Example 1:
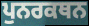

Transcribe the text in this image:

ਪੁਨਰਕਥਨ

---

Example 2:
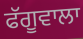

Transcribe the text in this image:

ਫੱਗੂਵਾਲਾ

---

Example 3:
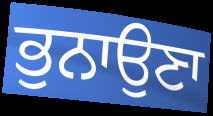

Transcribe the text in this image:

ਭੁਨਾਉਣਾ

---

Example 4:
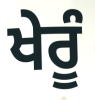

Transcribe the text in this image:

ਖੇਰੂੰ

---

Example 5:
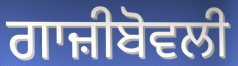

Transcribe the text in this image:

ਗਾਜ਼ੀਬੋਵਲੀ